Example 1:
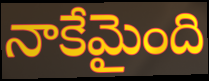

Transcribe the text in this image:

నాకేమైంది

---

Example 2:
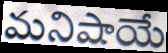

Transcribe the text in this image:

మనిషాయే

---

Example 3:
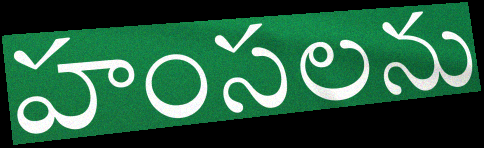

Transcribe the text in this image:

హంసలను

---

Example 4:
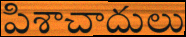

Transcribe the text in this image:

పిశాచాదులు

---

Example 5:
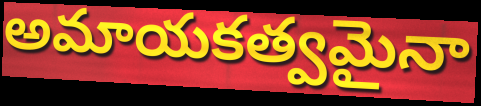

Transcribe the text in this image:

అమాయకత్వమైనా